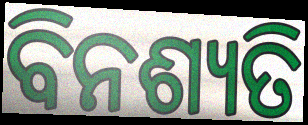
ବିନଶ୍ୟତି